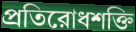
প্রতিরোধশক্তি